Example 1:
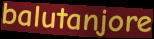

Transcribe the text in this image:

balutanjore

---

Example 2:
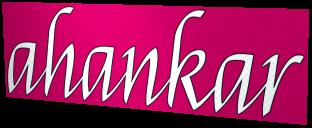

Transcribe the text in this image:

ahankar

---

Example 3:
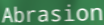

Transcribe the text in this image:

Abrasion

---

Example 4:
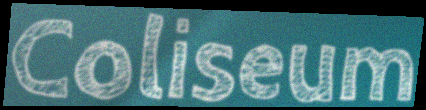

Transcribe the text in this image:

Coliseum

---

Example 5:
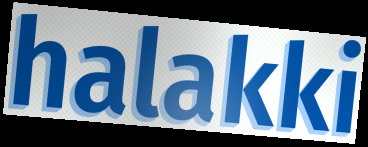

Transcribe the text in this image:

halakki